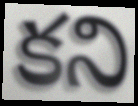
కని